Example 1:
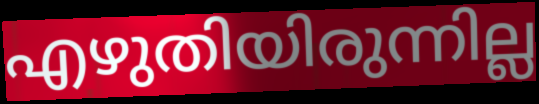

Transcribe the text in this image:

എഴുതിയിരുന്നില്ല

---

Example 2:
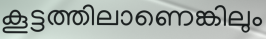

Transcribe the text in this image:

കൂട്ടത്തിലാണെങ്കിലും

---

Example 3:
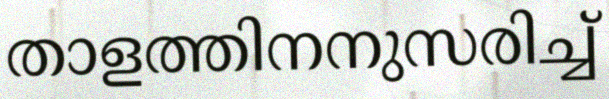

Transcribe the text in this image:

താളത്തിനനുസരിച്ച്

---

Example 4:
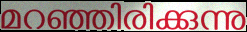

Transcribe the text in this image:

മറഞ്ഞിരിക്കുന്നു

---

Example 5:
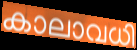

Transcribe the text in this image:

കാലാവധി